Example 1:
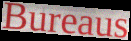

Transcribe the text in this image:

Bureaus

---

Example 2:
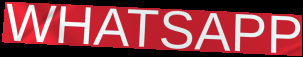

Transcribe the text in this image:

WHATSAPP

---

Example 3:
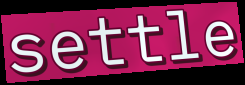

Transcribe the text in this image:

settle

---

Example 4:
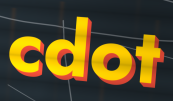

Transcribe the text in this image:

cdot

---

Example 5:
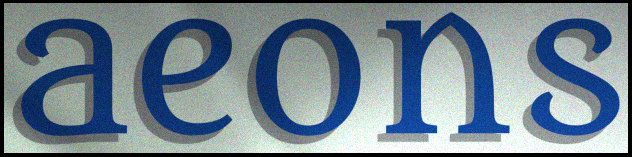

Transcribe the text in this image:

aeons